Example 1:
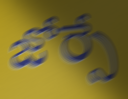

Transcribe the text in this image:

జోర్సే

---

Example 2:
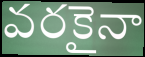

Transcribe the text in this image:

వరకైనా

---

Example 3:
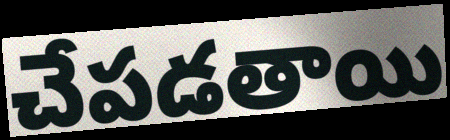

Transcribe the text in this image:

చేపడతాయి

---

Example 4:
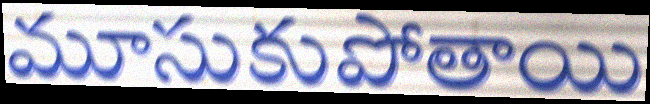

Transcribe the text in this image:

మూసుకుపోతాయి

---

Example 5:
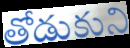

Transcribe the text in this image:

తోడుకుని